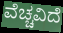
ವೆಚ್ಚವಿದೆ